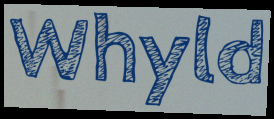
Whyld